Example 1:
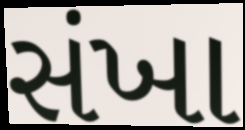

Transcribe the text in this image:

સંખા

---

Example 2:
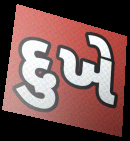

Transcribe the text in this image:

દુખે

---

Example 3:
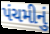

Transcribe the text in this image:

પંચમીનું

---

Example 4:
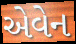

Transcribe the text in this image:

એવેન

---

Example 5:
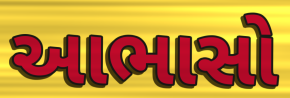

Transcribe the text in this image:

આભાસો